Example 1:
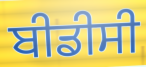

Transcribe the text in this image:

ਬੀਡੀਸੀ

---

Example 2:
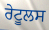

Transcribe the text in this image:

ਰੇਟੂਲਸ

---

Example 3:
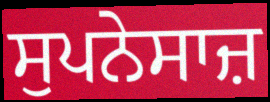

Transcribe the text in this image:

ਸੁਪਨੇਸਾਜ਼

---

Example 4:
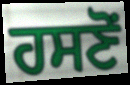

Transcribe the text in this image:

ਹਸਣੋਂ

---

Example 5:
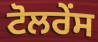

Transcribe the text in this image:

ਟੋਲਰੇਂਸ